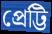
প্রেট্টি